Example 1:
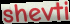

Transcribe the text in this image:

shevti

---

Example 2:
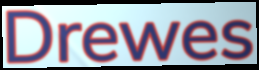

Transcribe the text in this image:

Drewes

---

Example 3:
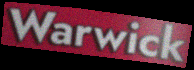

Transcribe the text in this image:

Warwick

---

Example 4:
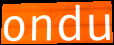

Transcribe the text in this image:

ondu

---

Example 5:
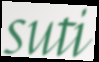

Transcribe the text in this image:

suti